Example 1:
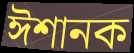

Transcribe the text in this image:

ঈশানক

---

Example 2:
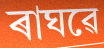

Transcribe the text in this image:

ৰাঘৱে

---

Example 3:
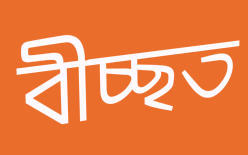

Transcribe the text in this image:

বীচ্ছত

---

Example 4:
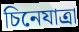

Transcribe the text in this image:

চিনেযাত্ৰা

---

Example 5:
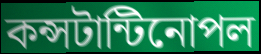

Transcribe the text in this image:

কন্সটান্টিনোপল